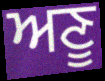
ਅਣੂ